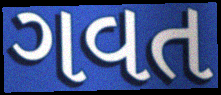
ગવત